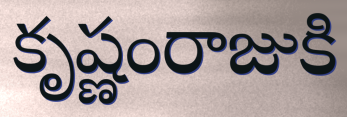
కృష్ణంరాజుకి